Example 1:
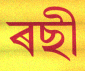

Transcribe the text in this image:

ৰছী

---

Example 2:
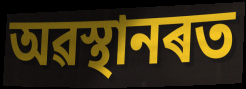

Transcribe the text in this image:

অৱস্থানৰত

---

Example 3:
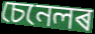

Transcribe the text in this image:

চেনেলৰ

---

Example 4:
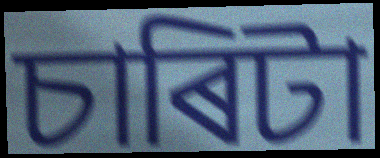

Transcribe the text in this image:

চাৰিটা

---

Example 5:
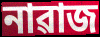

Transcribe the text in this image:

নাৱাজ